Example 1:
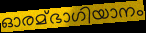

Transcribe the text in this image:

ഓരമ്ഭാഗിയാനം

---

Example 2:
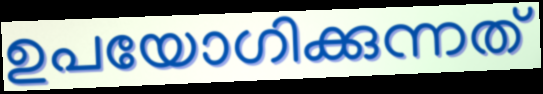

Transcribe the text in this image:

ഉപയോഗിക്കുന്നത്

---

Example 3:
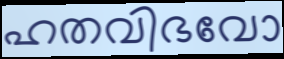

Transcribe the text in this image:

ഹതവിഭവോ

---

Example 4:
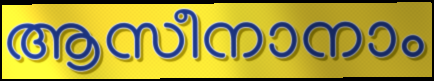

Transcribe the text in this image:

ആസീനാനാം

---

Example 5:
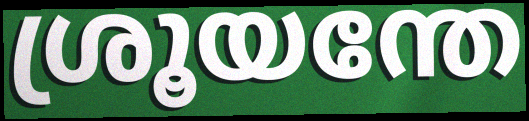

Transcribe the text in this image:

ശ്രൂയന്തേ